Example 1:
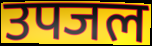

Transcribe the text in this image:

उपजल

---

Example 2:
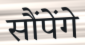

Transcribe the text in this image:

सौंपेंगे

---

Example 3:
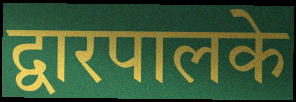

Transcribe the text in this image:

द्वारपालके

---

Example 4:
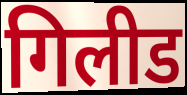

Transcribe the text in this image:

गिलीड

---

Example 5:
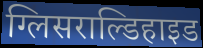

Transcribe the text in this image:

ग्लिसराल्डिहाइड